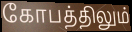
கோபத்திலும்